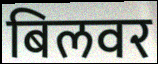
बिलवर